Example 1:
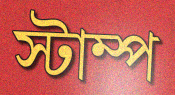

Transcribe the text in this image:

স্টাম্প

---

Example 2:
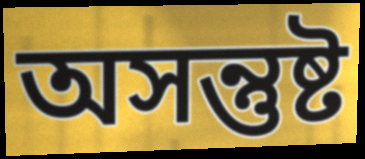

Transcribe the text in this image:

অসন্তুষ্ট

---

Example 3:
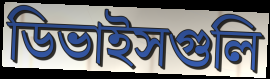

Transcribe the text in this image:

ডিভাইসগুলি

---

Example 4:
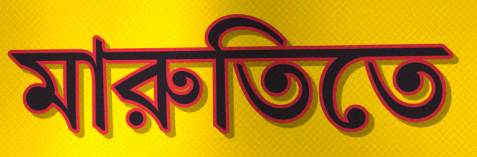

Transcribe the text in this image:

মারুতিতে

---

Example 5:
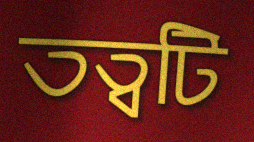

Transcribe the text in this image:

তত্বটি